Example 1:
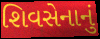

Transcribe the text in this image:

શિવસેનાનું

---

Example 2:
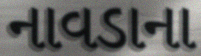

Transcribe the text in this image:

નાવડાના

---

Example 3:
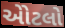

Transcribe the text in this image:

એોટલો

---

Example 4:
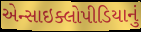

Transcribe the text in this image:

એન્સાઇક્લોપીડિયાનું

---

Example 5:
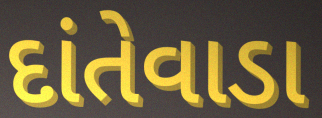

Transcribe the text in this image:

દાંતેવાડા